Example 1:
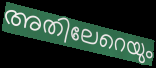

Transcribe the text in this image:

അതിലേറെയും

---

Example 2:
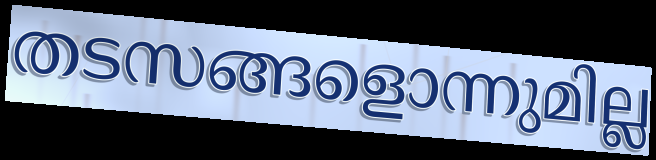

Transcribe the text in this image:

തടസങ്ങളൊന്നുമില്ല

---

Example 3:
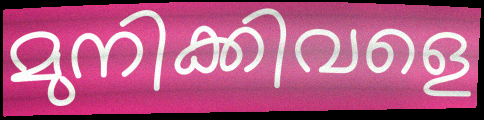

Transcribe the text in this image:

മുനിക്കിവളെ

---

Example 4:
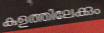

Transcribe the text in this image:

കുളത്തിലേക്കും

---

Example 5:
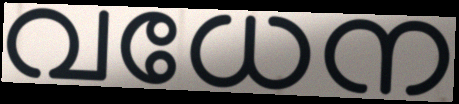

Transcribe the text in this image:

വധേന